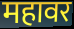
महावर